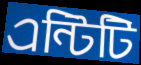
এন্টিটি